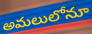
అమలులోనూ